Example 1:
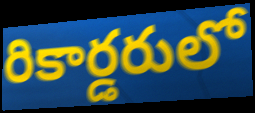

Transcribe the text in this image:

రికార్డరులో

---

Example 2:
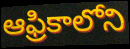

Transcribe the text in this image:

ఆఫ్రికాలోని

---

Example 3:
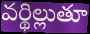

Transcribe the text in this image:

వర్థిల్లుతూ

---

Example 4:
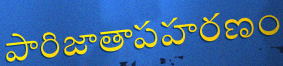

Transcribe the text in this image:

పారిజాతాపహరణం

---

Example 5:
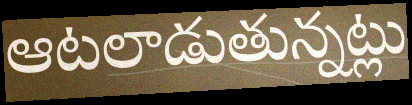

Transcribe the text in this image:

ఆటలాడుతున్నట్లు